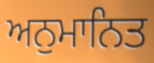
ਅਨੁਮਾਨਿਤ